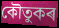
কৌতুকৰ